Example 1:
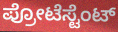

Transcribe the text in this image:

ಪ್ರೋಟೆಸ್ಟೆಂಟ್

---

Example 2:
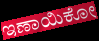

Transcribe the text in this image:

ಇಣಾಯಿಕೋ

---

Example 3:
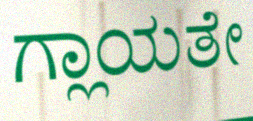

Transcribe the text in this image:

ಗ್ಲಾಯತೇ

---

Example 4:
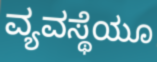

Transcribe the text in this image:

ವ್ಯವಸ್ಥೆಯೂ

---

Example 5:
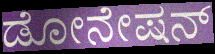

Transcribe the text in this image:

ಡೋನೇಷನ್